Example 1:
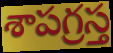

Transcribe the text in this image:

శాపగ్రస్త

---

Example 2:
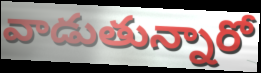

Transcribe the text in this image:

వాడుతున్నారో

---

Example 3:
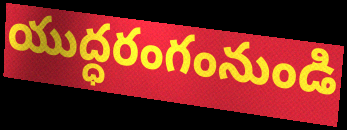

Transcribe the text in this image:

యుద్ధరంగంనుండి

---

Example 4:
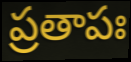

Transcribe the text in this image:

ప్రతాపః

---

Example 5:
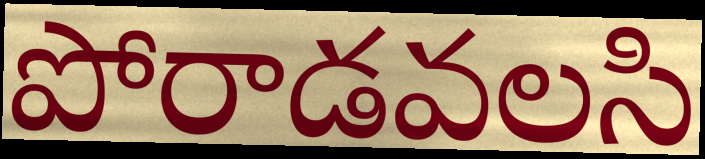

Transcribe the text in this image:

పోరాడవలసి